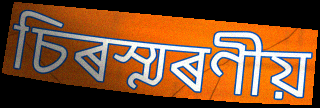
চিৰস্মৰণীয়